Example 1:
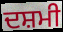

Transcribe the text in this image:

ਦਸ਼ਮੀ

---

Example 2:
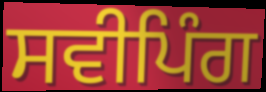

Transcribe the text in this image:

ਸਵੀਪਿੰਗ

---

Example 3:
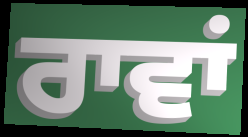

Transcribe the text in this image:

ਰਾਵਾਂ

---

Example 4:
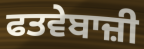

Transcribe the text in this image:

ਫਤਵੇਬਾਜ਼ੀ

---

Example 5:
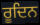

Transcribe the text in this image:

ਰੂਦਿਨ